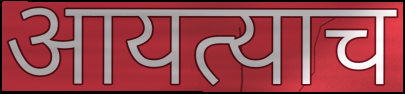
आयत्याच